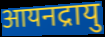
आयनद्रायु